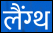
लैंग्थ